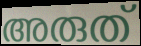
അരുത്